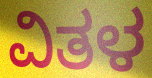
ವಿತಳ